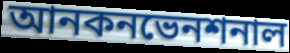
আনকনভেনশনাল